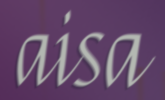
aisa